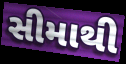
સીમાથી